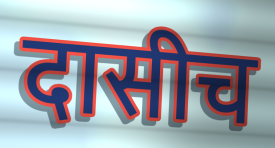
दासीच